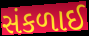
સંકળાઈ